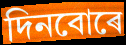
দিনবোৰে